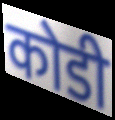
कोडी